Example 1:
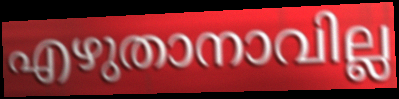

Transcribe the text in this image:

എഴുതാനാവില്ല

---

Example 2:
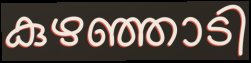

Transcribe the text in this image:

കുഴഞ്ഞാടി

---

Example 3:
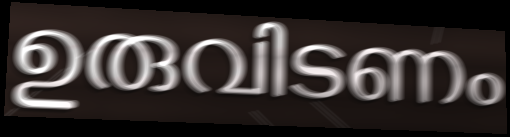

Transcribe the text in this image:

ഉരുവിടണം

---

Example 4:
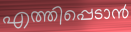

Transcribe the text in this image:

എത്തിപ്പെടാൻ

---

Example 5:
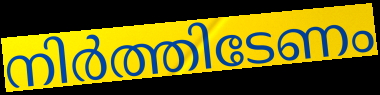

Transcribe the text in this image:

നിർത്തിടേണം